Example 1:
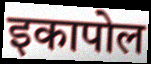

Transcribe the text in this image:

इकापोल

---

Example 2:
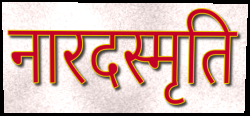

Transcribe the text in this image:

नारदस्मृति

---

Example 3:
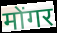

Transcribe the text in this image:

मोंगर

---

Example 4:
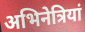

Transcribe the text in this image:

अभिनेत्रियां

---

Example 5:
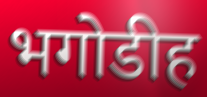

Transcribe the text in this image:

भगोडीह